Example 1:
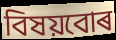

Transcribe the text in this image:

বিষয়বোৰ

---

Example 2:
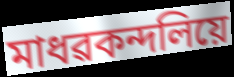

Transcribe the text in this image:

মাধৱকন্দলিয়ে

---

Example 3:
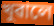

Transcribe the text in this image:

খুৱালে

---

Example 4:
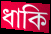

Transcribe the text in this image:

ধাকি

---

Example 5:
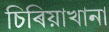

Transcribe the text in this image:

চিৰিয়াখানা